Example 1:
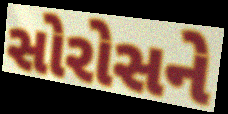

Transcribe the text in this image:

સોરોસને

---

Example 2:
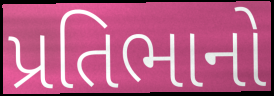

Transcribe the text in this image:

પ્રતિભાનો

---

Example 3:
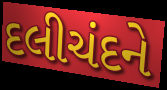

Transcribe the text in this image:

દલીચંદને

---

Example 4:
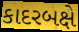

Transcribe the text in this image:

કાદરબક્ષે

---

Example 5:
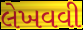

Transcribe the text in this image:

લેખવવી